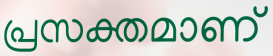
പ്രസക്തമാണ്